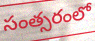
సంత్సరంలో